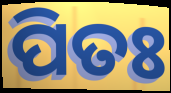
ପିତଃ